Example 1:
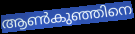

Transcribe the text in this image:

ആൺകുഞ്ഞിനെ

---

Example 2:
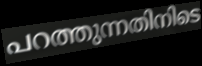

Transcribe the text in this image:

പറത്തുന്നതിനിടെ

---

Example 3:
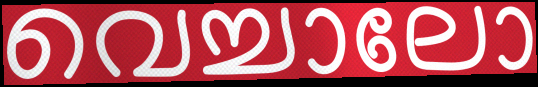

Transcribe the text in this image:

വെച്ചാലോ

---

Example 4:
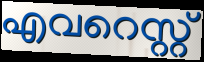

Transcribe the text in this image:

എവറെസ്റ്റ്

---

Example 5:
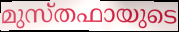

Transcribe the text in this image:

മുസ്തഫായുടെ